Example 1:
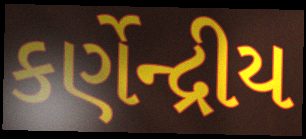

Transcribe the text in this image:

કર્ણેન્દ્રીય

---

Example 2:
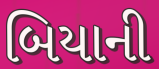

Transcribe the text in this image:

બિયાની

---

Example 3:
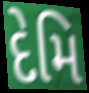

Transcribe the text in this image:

દેમિ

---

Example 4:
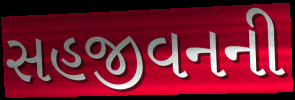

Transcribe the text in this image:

સહજીવનની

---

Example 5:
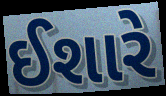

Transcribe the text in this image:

ઈશારે